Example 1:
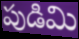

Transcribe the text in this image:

పుడిమి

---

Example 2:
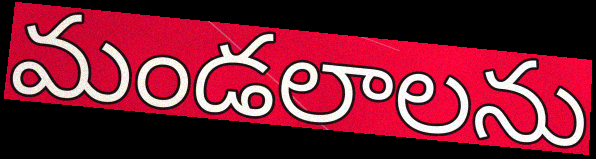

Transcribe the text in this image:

మండలాలను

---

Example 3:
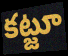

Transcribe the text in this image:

కట్జూ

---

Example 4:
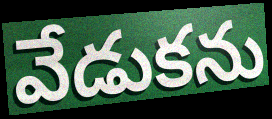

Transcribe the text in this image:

వేడుకను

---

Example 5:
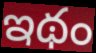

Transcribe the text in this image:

ఇథం